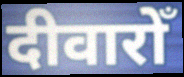
दीवारोँ